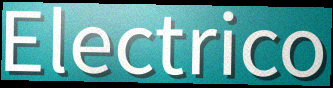
Electrico